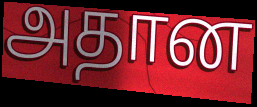
அதான